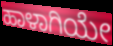
ಹಾಳಾಗಿಯೇ